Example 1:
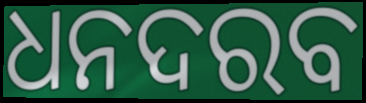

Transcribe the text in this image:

ଧନଦରବ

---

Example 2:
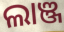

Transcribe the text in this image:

ଲାଞ୍ଜ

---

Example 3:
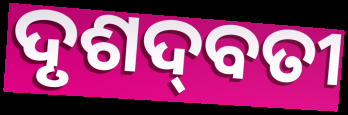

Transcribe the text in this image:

ଦୃଶଦ୍‌ବତୀ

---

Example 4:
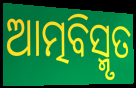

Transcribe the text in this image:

ଆତ୍ମବିସ୍ମୃତ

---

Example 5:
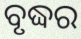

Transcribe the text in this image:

ବୃଦ୍ଧର